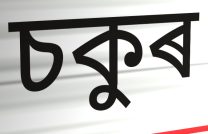
চকুৰ